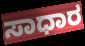
ಸಾಧಾರ